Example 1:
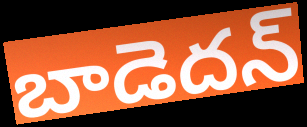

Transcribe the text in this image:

బాడెదన్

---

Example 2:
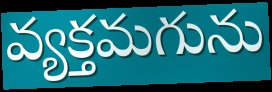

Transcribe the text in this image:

వ్యక్తమగును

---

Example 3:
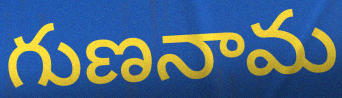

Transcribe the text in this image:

గుణనామ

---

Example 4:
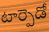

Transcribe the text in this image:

టార్పెడో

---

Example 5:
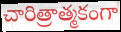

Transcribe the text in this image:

చారిత్రాత్మకంగా